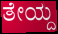
ತೇಯ್ದ